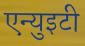
एन्युइटी